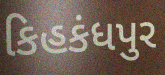
કિહકંધપુર